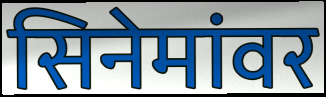
सिनेमांवर